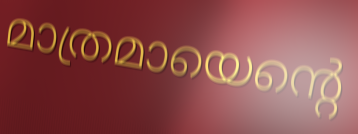
മാത്രമായെന്റെ